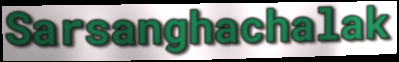
Sarsanghachalak